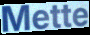
Mette